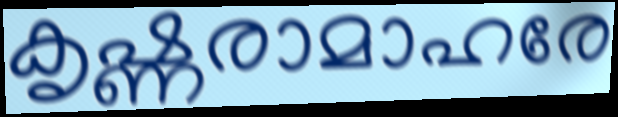
കൃഷ്ണരാമാഹരേ